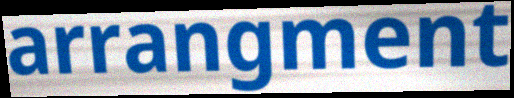
arrangment